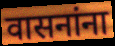
वासनांना